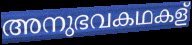
അനുഭവകഥകള്